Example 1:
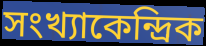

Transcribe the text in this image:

সংখ্যাকেন্দ্রিক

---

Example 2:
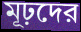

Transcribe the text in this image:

মূঢ়দের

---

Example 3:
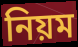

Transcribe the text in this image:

নিয়ম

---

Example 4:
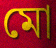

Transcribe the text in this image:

মো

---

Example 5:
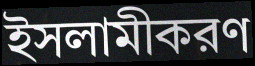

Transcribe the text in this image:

ইসলামীকরণ